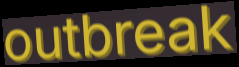
outbreak